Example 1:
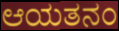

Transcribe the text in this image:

ಆಯತನಂ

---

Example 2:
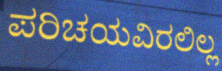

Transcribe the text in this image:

ಪರಿಚಯವಿರಲಿಲ್ಲ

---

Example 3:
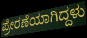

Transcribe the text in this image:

ಪ್ರೇರಣೆಯಾಗಿದ್ದಳು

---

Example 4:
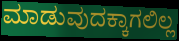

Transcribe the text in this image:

ಮಾಡುವುದಕ್ಕಾಗಲಿಲ್ಲ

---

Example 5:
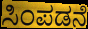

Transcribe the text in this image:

ಸಿಂಪಡನೆ